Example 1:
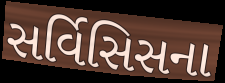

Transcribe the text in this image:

સર્વિસિસના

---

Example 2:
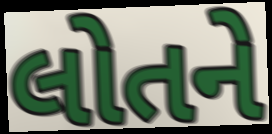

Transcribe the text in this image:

લોતને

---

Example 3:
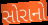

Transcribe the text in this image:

સોરાનો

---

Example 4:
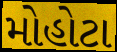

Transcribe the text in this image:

મોહોટા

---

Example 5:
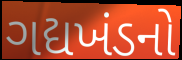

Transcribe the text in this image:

ગદ્યખંડનો